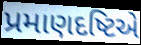
પ્રમાણદષ્ટિએ